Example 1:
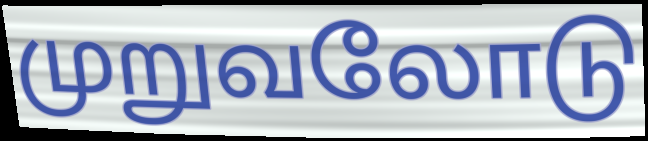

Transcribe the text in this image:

முறுவலோடு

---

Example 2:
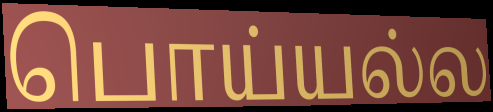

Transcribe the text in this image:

பொய்யல்ல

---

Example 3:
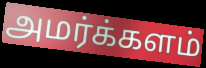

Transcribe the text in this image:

அமர்க்களம்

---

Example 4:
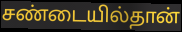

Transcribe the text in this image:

சண்டையில்தான்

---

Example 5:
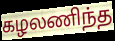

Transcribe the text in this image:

கழலணிந்த